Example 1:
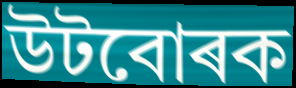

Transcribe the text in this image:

উটবোৰক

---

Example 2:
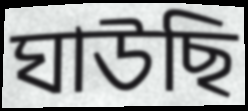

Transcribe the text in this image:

ঘাউছি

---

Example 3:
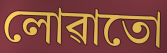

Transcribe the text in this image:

লোৱাতো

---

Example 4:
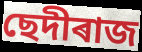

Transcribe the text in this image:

ছেদীৰাজ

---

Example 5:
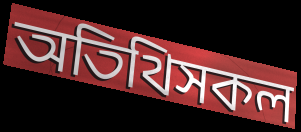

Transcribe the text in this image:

অতিথিসকল